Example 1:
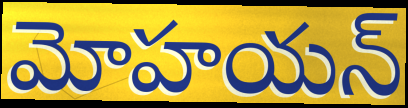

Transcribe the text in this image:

మోహయన్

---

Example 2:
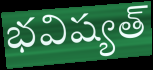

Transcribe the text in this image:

భవిష్యత్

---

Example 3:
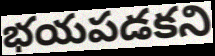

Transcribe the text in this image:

భయపడకని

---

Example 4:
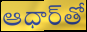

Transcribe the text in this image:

ఆధార్‌తో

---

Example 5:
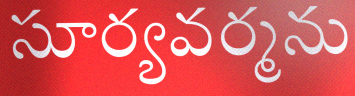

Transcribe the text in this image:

సూర్యవర్మను